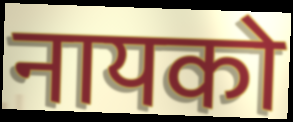
नायको